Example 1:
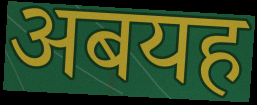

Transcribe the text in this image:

अबयह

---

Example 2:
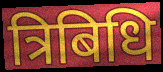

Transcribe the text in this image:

त्रिबिधि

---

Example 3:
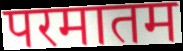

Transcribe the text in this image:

परमातम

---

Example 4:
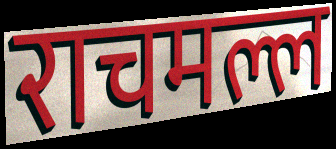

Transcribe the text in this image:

राचमल्ल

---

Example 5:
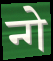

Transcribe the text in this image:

न्गे